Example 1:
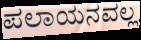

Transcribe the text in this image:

ಪಲಾಯನವಲ್ಲ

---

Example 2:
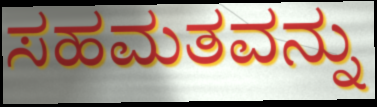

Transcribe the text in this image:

ಸಹಮತವನ್ನು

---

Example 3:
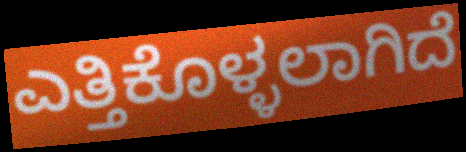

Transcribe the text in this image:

ಎತ್ತಿಕೊಳ್ಳಲಾಗಿದೆ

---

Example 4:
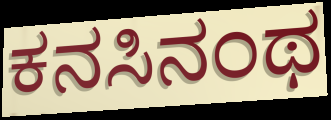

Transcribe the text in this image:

ಕನಸಿನಂಥ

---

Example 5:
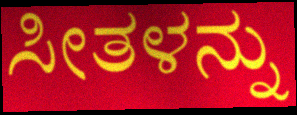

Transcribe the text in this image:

ಸೀತಳನ್ನು